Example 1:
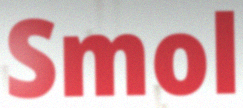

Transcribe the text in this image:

Smol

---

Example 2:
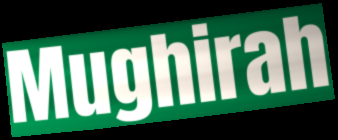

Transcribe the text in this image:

Mughirah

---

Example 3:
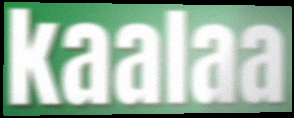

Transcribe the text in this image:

kaalaa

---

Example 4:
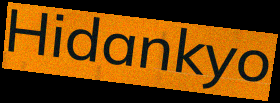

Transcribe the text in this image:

Hidankyo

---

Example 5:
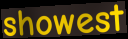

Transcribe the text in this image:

showest